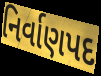
નિર્વાણપદ